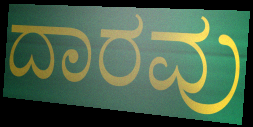
ದಾರವು